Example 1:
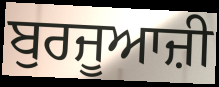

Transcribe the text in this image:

ਬੁਰਜੂਆਜ਼ੀ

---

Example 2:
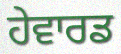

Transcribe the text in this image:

ਹੇਵਾਰਡ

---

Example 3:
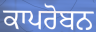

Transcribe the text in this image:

ਕਾਪਰੋਬਨ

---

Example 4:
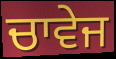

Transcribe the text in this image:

ਚਾਵੇਜ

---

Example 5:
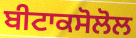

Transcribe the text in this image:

ਬੀਟਾਕਸੋਲੋਲ